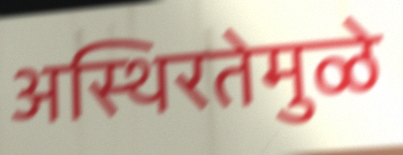
अस्थिरतेमुळे